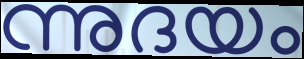
ന്നുദയം